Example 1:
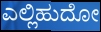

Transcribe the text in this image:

ಎಲ್ಲಿಹುದೋ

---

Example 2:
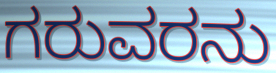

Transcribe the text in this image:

ಗರುವರನು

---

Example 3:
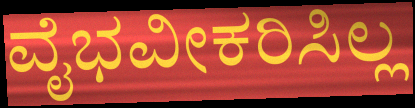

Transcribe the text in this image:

ವೈಭವೀಕರಿಸಿಲ್ಲ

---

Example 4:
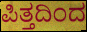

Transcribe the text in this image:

ಪಿತ್ತದಿಂದ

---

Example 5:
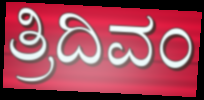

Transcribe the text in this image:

ತ್ರಿದಿವಂ